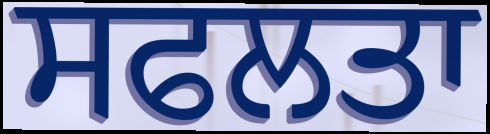
ਸਫਲਤਾ